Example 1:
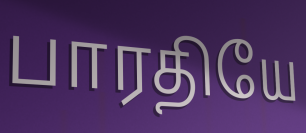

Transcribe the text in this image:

பாரதியே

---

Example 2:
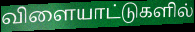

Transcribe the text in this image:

விளையாட்டுகளில்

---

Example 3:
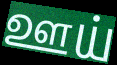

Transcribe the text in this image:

ஊய்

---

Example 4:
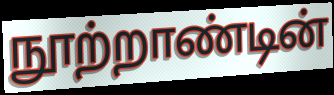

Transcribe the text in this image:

நூற்றாண்டின்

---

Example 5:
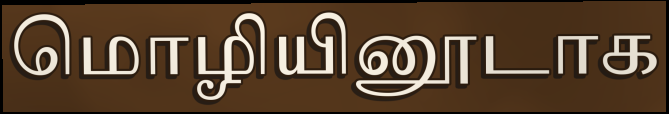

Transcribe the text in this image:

மொழியினூடாக